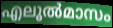
എലൂൽമാസം